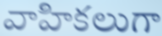
వాహికలుగా